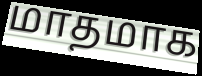
மாதமாக